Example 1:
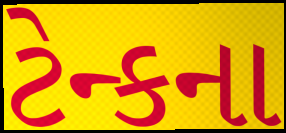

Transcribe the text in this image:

ટેન્કના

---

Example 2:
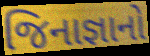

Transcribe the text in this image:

જિનાજ્ઞાનો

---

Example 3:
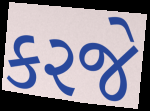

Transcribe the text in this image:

કરજે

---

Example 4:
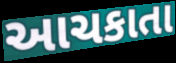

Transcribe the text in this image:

આચકાતા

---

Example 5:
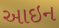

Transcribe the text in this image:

આઇન